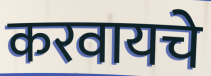
करवायचे